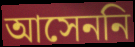
আসেননি